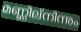
മണ്ണില്നിന്നും